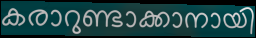
കരാറുണ്ടാക്കാനായി